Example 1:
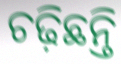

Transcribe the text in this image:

ଚଢ଼ିଛନ୍ତି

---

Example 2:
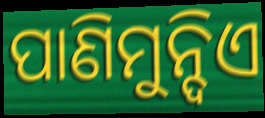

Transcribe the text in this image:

ପାଣିମୁନ୍ଦିଏ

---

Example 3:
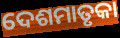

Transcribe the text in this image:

ଦେଶମାତୃକା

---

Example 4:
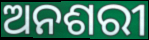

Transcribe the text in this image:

ଅନଶରୀ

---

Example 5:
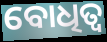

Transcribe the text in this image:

ବୋଧିତ୍ୱ